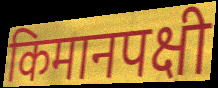
किमानपक्षी